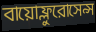
বায়োফ্লুরোসেন্স